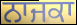
ਨਾਜਕਾ